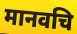
मानवचि